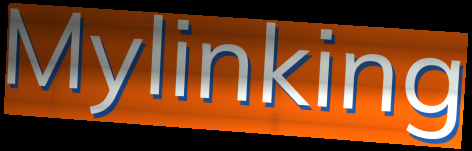
Mylinking